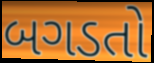
બગડતો